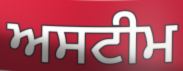
ਅਸਟੀਮ